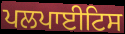
ਪਲਪਾਈਟਿਸ